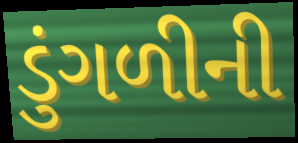
ડુંગળીની